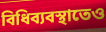
বিধিব্যবস্থাতেও